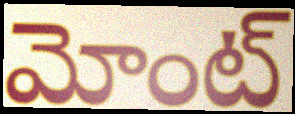
మోంట్